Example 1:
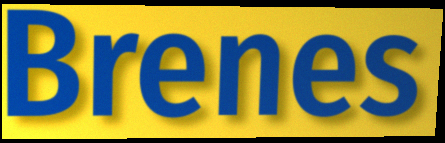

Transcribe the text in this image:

Brenes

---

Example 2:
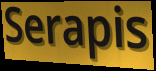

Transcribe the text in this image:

Serapis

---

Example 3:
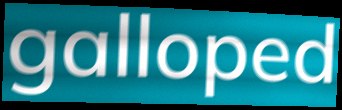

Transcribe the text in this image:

galloped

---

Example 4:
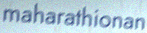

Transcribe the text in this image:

maharathionan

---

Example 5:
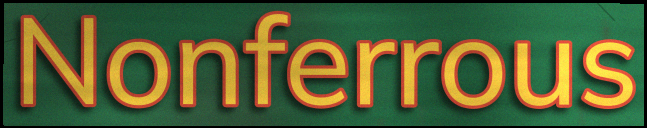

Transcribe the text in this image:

Nonferrous